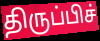
திருப்பிச்